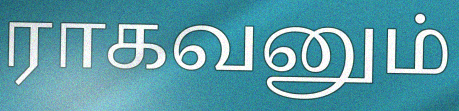
ராகவனும்